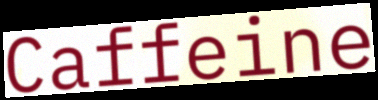
Caffeine